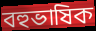
বহুভাষিক